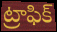
ట్రాఫిక్